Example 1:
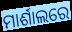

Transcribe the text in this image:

ମାର୍ଶାଲରେ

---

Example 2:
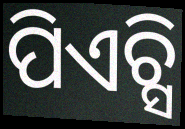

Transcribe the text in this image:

ପିଏଚ୍ସି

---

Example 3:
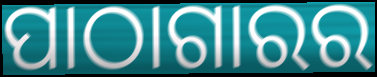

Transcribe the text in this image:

ପାଠାଗାରର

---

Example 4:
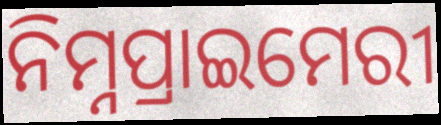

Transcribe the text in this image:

ନିମ୍ନପ୍ରାଇମେରୀ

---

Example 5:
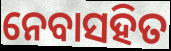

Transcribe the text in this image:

ନେବାସହିତ